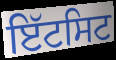
ਇੱਟਸਿਟ